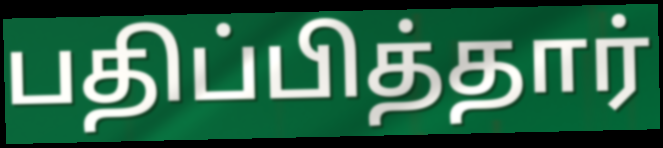
பதிப்பித்தார்